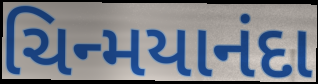
ચિન્મયાનંદા